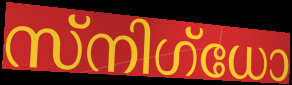
സ്നിഗ്ധോ